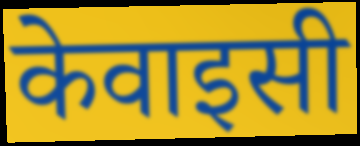
केवाइसी